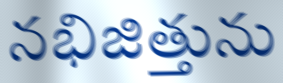
నభిజిత్తును